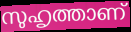
സുഹൃത്താണ്